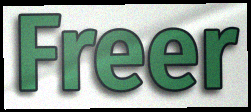
Freer